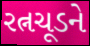
રત્નચૂડને